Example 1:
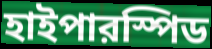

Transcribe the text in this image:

হাইপারস্পিড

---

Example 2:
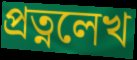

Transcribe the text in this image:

প্রত্নলেখ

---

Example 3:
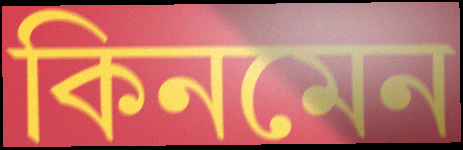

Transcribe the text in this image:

কিনমেন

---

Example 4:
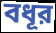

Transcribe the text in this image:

বধূর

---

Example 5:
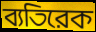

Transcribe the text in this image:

ব্যতিরেক